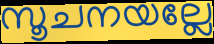
സൂചനയല്ലേ